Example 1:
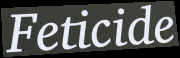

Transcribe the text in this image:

Feticide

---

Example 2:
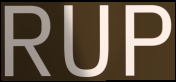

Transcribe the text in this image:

RUP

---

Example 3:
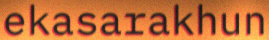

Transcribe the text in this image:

ekasarakhun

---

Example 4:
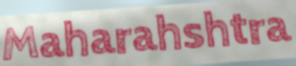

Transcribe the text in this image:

Maharahshtra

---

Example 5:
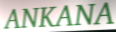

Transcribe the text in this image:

ANKANA